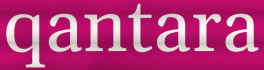
qantara